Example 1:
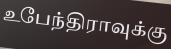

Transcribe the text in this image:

உபேந்திராவுக்கு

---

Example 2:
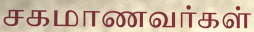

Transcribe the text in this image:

சகமாணவர்கள்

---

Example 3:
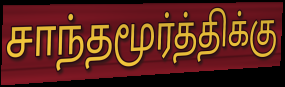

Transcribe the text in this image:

சாந்தமூர்த்திக்கு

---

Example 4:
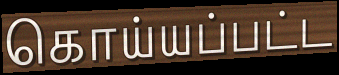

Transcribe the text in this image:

கொய்யப்பட்ட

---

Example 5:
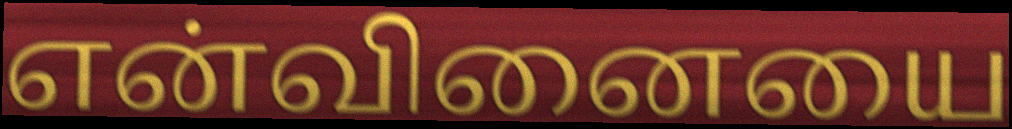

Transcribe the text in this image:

என்வினையை